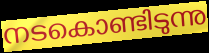
നടകൊണ്ടിടുന്നു